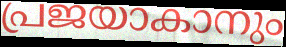
പ്രജയാകാനും